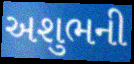
અશુભની